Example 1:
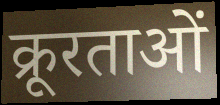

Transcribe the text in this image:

क्रूरताओं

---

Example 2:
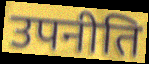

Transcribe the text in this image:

उपनीति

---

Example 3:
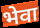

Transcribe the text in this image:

भेवा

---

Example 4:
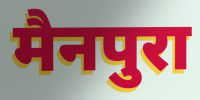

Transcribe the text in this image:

मैनपुरा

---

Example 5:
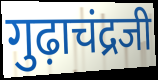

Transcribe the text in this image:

गुढ़ाचंद्रजी